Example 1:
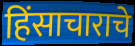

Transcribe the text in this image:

हिंसाचाराचे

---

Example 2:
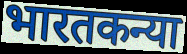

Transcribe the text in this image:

भारतकन्या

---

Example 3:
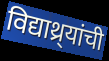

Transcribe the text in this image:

विद्याथ्र्यांची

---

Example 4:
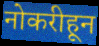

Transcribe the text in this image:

नोकरीहून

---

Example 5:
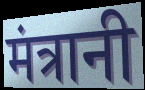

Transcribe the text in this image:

मंत्रानी